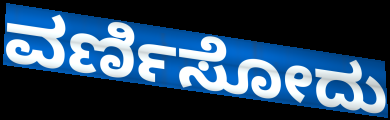
ವರ್ಣಿಸೋದು